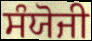
ਸੰਯੋਜੀ